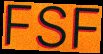
FSF